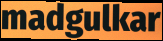
madgulkar